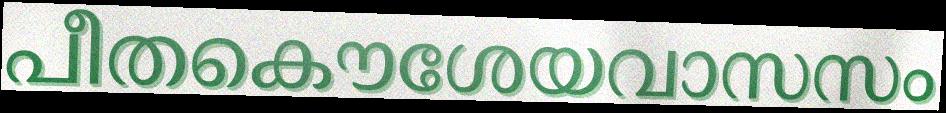
പീതകൌശേയവാസസം